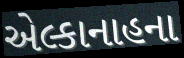
એલ્કાનાહના